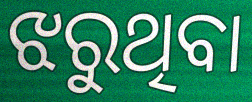
ଝରୁଥିବା